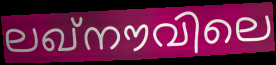
ലഖ്നൗവിലെ